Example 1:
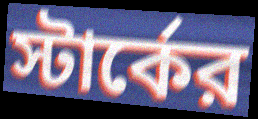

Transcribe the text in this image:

স্টার্কের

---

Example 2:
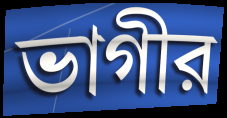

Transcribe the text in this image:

ভাগীর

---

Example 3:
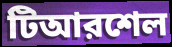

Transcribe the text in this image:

টিআরশেল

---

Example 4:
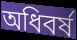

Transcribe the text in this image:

অধিবর্ষ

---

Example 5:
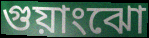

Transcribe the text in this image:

গুয়াংঝো